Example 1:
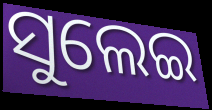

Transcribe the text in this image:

ସୁଲେଇ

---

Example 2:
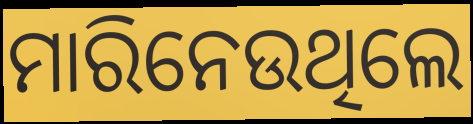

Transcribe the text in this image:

ମାରିନେଉଥିଲେ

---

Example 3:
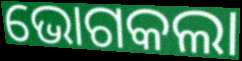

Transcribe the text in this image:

ଭୋଗକଲା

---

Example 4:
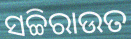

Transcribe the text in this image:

ସଚ୍ଚିରାଉତ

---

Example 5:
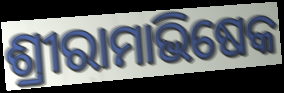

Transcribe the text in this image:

ଶ୍ରୀରାମାଭିଷେକ